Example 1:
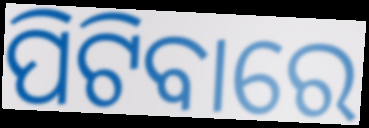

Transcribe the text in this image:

ପିଟିବାରେ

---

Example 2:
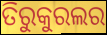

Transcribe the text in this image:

ତିରୁକୁରଲର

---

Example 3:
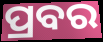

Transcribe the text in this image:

ପ୍ରବର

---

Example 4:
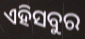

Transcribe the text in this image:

ଏହିସବୁର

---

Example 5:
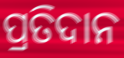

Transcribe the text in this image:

ପ୍ରତିଦାନ